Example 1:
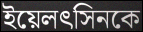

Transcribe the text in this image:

ইয়েলৎসিনকে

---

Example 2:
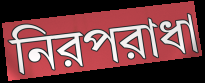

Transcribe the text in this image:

নিরপরাধা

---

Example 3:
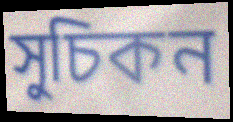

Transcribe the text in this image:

সুচিকন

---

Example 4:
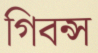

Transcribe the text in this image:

গিবন্স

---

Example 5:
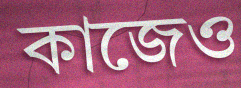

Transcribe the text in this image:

কাজেও